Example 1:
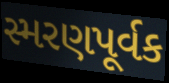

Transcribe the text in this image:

સ્મરણપૂર્વક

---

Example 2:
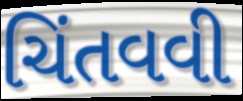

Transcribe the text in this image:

ચિંતવવી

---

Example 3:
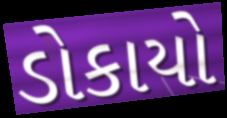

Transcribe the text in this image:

ડોકાયો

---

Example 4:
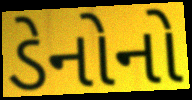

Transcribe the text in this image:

ડેનોનો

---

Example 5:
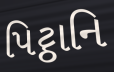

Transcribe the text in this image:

પિટ્ઠાનિ